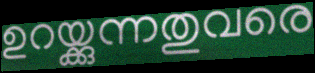
ഉറയ്ക്കുന്നതുവരെ